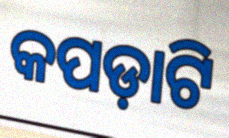
କପଡ଼ାଟି